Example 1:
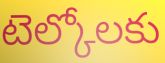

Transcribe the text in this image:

టెల్కోలకు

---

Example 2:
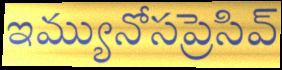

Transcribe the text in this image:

ఇమ్యునోసప్రెసివ్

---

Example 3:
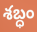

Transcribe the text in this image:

శబ్ధం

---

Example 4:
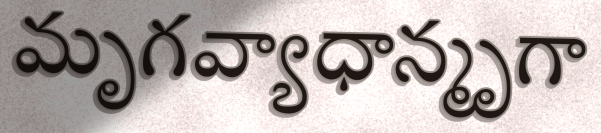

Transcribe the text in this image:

మృగవ్యాధాన్మృగా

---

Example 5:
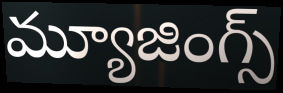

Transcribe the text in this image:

మ్యూజింగ్స్